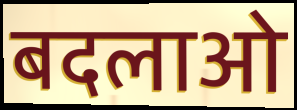
बदलाओ